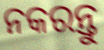
ନକରନ୍ତୁ